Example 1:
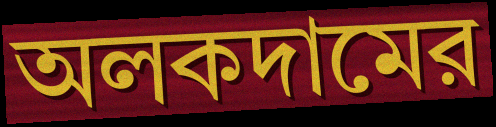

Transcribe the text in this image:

অলকদামের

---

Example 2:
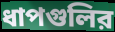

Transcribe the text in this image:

ধাপগুলির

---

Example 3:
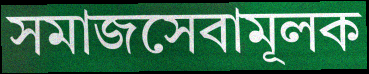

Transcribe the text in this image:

সমাজসেবামূলক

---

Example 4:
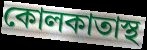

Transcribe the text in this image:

কোলকাতাস্থ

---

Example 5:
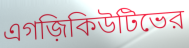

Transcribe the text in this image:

এগজ়িকিউটিভের